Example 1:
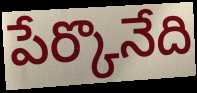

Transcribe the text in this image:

పేర్కొనేది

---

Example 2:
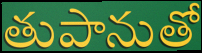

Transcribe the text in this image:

తుపానుతో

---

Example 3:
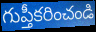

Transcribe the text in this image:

గుప్తీకరించండి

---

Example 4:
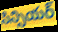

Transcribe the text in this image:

సిన్సియర్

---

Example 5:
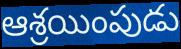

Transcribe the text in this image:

ఆశ్రయింపుడు